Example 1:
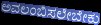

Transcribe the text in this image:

ಅವಲಂಬಿಸಲೇಬೇಕು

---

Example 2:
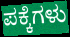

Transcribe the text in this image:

ಪಕ್ಕೆಗಳು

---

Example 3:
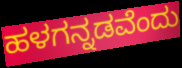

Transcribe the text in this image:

ಹಳಗನ್ನಡವೆಂದು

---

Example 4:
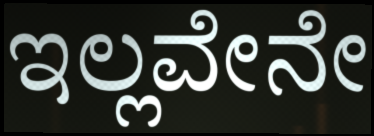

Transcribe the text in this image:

ಇಲ್ಲವೇನೇ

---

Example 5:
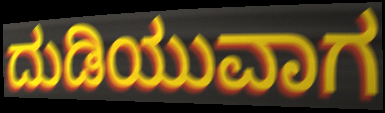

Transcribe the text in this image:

ದುಡಿಯುವಾಗ